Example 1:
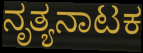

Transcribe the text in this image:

ನೃತ್ಯನಾಟಕ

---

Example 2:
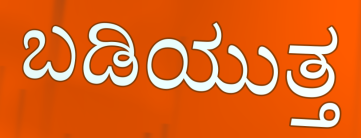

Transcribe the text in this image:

ಬಡಿಯುತ್ತ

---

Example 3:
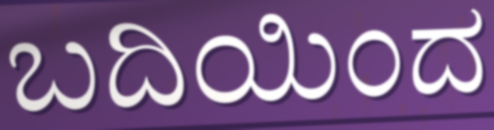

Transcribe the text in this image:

ಬದಿಯಿಂದ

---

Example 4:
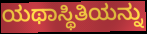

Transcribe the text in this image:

ಯಥಾಸ್ಥಿತಿಯನ್ನು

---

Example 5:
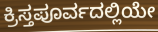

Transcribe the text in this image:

ಕ್ರಿಸ್ತಪೂರ್ವದಲ್ಲಿಯೇ